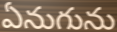
ఏనుగును